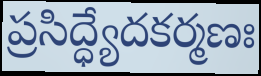
ప్రసిద్ధ్యేదకర్మణః